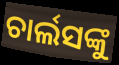
ଚାର୍ଲସଙ୍କୁ